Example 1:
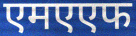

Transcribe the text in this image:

एमएएफ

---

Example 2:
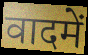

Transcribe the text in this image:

वादमें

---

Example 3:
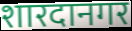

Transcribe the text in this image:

शारदानगर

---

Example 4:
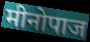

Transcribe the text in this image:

मीनोपाज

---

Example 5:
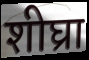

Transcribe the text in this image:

शीघ्रा